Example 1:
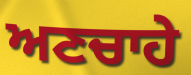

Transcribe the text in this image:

ਅਣਚਾਹੇ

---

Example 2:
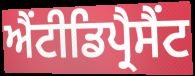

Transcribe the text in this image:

ਐਂਟੀਡਿਪ੍ਰੈਸੈਂਟ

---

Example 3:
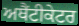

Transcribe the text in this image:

ਅਥੈਂਟੀਕੇਟਰ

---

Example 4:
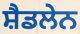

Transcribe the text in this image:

ਸ਼ੈਡਲੇਨ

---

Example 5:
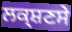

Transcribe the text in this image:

ਲਕ੍ਸ਼ਣਸੇ